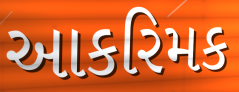
આકરિમક